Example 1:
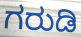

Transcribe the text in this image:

ಗರುಡಿ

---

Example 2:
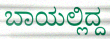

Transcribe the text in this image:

ಬಾಯಲ್ಲಿದ್ದ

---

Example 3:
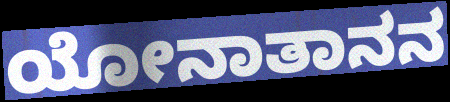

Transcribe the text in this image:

ಯೋನಾತಾನನ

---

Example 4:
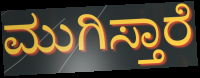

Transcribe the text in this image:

ಮುಗಿಸ್ತಾರೆ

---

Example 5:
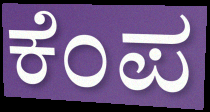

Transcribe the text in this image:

ಕೆಂಪ